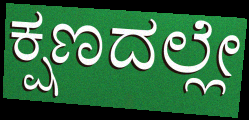
ಕ್ಷಣದಲ್ಲೇ